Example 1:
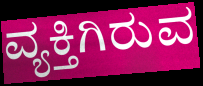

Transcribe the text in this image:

ವ್ಯಕ್ತಿಗಿರುವ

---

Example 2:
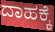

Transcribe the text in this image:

ದಾಹಕ್ಕೆ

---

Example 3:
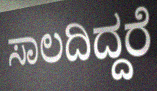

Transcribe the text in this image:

ಸಾಲದಿದ್ದರೆ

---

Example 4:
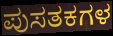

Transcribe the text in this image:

ಪುಸತಕಗಳ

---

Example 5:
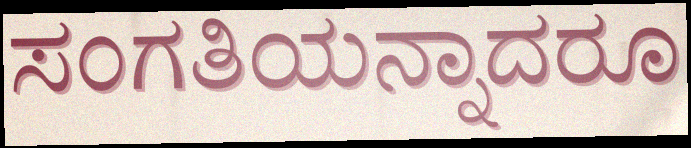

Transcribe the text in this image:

ಸಂಗತಿಯನ್ನಾದರೂ